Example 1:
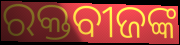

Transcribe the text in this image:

ରକ୍ତବୀଜଙ୍କ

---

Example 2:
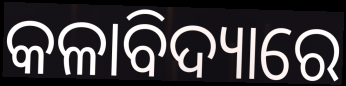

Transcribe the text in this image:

କଳାବିଦ୍ୟାରେ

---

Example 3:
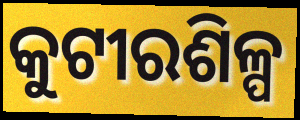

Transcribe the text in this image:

କୁଟୀରଶିଳ୍ପ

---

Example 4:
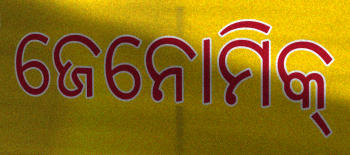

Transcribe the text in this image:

ଜେନୋମିକ୍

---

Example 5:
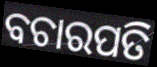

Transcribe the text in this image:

ବଚାରପତି